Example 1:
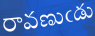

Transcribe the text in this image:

రావణుఁడు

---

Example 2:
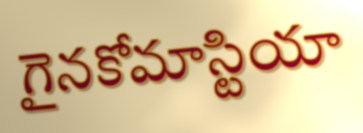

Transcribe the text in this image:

గైనకోమాస్టియా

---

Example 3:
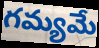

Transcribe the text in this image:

గమ్యమే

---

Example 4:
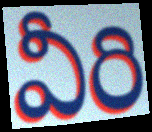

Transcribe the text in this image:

వీరి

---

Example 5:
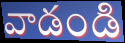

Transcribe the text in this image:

వాడండి